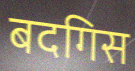
बदगिस